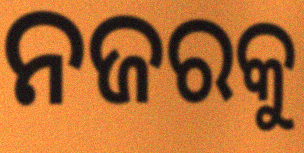
ନଜରକୁ